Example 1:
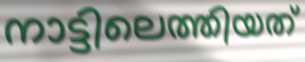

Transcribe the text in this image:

നാട്ടിലെത്തിയത്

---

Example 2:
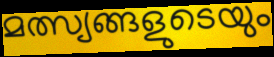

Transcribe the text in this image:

മത്സ്യങ്ങളുടെയും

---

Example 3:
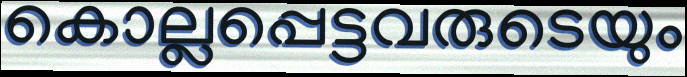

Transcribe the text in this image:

കൊല്ലപ്പെട്ടവരുടെയും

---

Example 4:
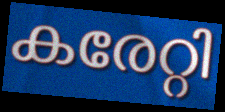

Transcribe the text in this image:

കരേറ്റി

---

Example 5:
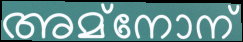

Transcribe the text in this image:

അമ്നോന്